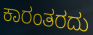
ಕಾರಂತರದು